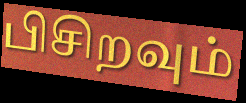
பிசிறவும்